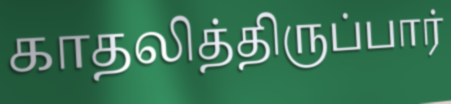
காதலித்திருப்பார்